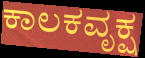
ಕಾಲಕವೃಕ್ಷ